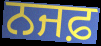
ਨਜਫ਼